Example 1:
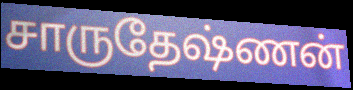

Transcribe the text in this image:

சாருதேஷ்ணன்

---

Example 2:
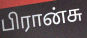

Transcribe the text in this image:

பிரான்சு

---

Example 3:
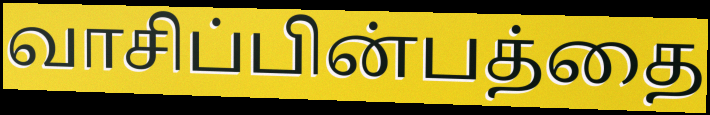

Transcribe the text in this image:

வாசிப்பின்பத்தை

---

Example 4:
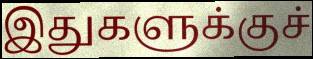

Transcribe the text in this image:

இதுகளுக்குச்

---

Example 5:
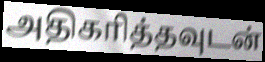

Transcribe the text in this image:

அதிகரித்தவுடன்